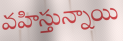
వహిస్తున్నాయి